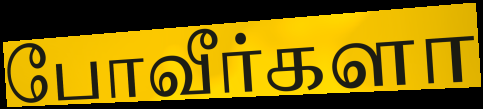
போவீர்களா